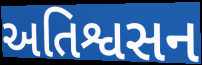
અતિશ્વસન